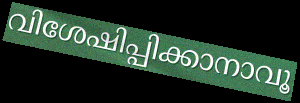
വിശേഷിപ്പിക്കാനാവൂ